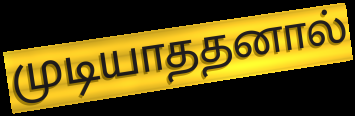
முடியாததனால்